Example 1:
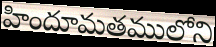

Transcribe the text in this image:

హిందూమతములోని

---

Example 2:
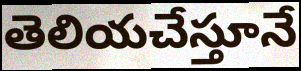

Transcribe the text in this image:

తెలియచేస్తూనే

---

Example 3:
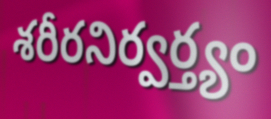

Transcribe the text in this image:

శరీరనిర్వర్త్యం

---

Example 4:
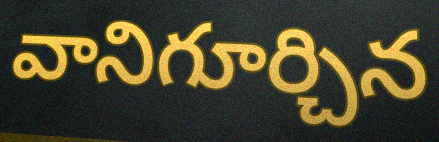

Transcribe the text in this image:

వానిగూర్చిన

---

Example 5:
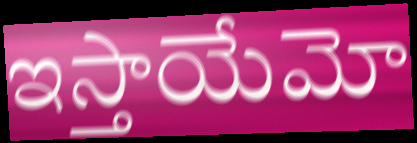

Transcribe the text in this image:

ఇస్తాయేమో